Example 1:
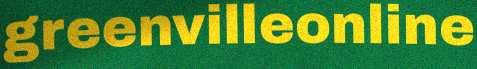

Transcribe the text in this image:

greenvilleonline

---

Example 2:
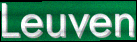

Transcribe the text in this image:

Leuven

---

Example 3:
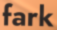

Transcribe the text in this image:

fark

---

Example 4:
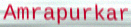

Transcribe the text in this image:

Amrapurkar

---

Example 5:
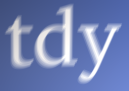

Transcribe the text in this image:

tdy